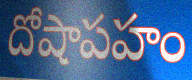
దోషాపహం